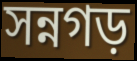
সন্নগড়